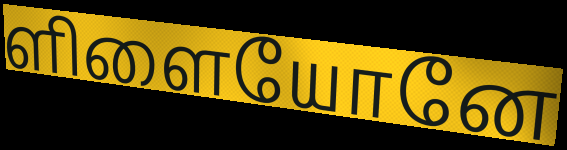
ளிளையோனே